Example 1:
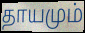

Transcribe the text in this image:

தாயமும்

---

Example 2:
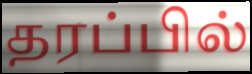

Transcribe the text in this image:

தரப்பில்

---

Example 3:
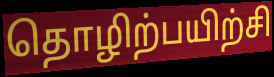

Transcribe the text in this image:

தொழிற்பயிற்சி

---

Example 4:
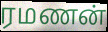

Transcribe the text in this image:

ரமணன்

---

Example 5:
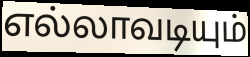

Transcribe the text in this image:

எல்லாவடியும்